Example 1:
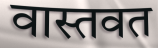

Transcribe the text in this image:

वास्‍तवत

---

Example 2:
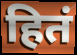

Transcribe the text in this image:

हितं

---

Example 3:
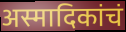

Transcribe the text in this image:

अस्मादिकांचं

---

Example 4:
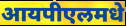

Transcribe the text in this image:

आयपीएलमधे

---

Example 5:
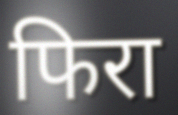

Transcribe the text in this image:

फिरा